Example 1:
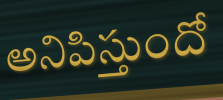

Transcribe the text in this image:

అనిపిస్తుందో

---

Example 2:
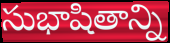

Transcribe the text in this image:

సుభాషితాన్ని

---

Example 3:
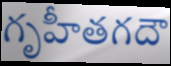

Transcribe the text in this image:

గృహీతగదౌ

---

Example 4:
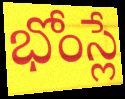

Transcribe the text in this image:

భోంస్లే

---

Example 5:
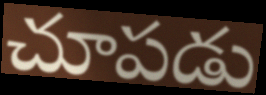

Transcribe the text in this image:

చూపడు